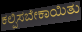
ಕಲ್ಪಿಸಬೇಕಾಯಿತು